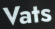
Vats